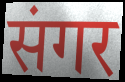
संगर